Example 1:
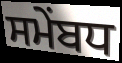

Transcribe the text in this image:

ਸਮੇਂਬਧ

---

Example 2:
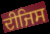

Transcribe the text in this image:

ਦੀਜਿਸ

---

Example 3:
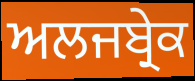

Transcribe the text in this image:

ਅਲਜਬ੍ਰੇਕ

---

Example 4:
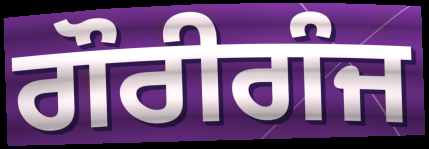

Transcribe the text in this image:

ਗੌਰੀਗੰਜ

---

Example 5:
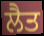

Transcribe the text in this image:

ਲੈਤ